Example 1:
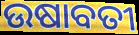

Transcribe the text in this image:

ଉଷାବତୀ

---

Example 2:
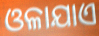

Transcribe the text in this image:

ଓଳାଯାଏ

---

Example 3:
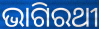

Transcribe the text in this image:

ଭାଗିରଥୀ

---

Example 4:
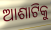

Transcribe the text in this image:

ଆଶାଟିକୁ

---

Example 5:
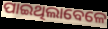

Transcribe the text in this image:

ପାଇଥିଲାବେଳେ